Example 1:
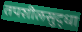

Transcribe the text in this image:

तपशीलसुद्धा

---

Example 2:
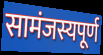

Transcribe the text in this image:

सामंजस्यपूर्ण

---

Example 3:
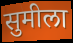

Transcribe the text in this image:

सुमीला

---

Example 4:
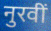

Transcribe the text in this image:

नुरवीं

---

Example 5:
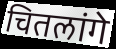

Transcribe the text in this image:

चितलांगे